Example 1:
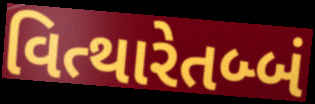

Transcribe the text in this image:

વિત્થારેતબ્બં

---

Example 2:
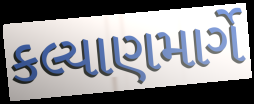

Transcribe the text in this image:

કલ્યાણમાર્ગે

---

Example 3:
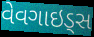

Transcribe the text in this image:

વેવગાઇડ્સ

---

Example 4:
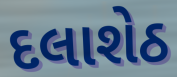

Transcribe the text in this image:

દલાશેઠ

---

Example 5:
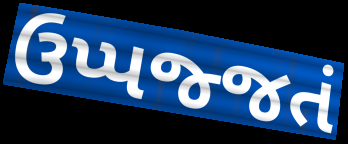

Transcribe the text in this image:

ઉપ્પજ્જતં